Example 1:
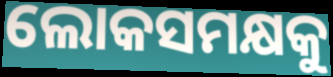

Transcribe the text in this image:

ଲୋକସମକ୍ଷକୁ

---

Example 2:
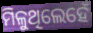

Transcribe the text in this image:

ମିଳୁଥିଲେହେଁ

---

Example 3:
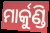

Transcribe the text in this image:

ମାର୍କୁଣ୍ଡି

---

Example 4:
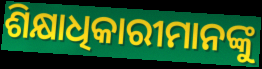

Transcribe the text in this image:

ଶିକ୍ଷାଧିକାରୀମାନଙ୍କୁ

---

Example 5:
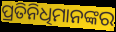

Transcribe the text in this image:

ପ୍ରତିନିଧିମାନଙ୍କର